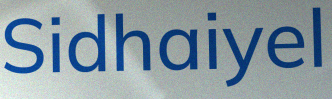
Sidhaiyel